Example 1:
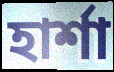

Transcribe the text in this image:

হার্শা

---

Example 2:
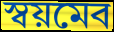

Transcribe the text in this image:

স্বয়মেব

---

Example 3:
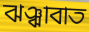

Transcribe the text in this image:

ঝঞ্ঝাবাত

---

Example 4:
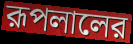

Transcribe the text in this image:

রূপলালের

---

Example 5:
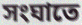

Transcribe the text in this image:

সংঘাতে